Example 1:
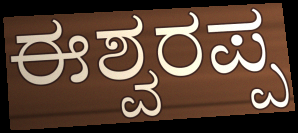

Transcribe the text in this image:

ಈಶ್ವರಪ್ಪ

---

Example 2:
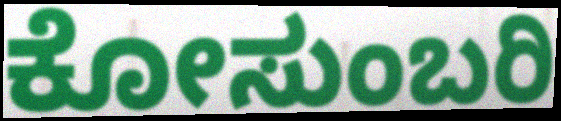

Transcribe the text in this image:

ಕೋಸುಂಬರಿ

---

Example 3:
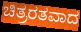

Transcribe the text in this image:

ಚಿತ್ರರತವಾದ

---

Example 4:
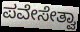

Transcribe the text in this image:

ಪವೇಸೇತ್ವಾ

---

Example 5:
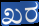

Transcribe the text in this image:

ಖರ